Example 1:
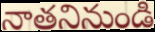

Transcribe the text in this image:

నాతనినుండి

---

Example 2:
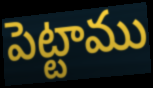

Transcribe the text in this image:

పెట్టాము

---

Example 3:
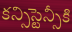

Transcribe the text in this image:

కన్సిస్టెన్సీకి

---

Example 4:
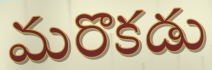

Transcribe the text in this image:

మరొకడు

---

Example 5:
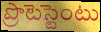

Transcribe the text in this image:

ప్రొటెస్టెంటు